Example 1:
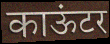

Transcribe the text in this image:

काऊंटर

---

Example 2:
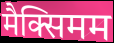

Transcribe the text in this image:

मैक्सिमम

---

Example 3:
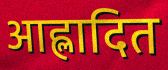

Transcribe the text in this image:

आह्लादित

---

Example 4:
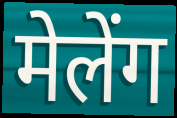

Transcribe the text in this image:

मेलेंग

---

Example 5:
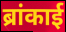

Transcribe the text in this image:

ब्रांकाई